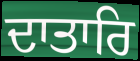
ਦਾਤਾਰਿ